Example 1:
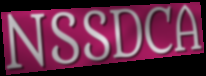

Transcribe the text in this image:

NSSDCA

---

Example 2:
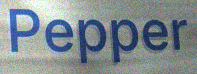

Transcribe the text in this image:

Pepper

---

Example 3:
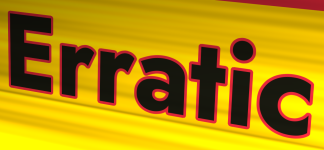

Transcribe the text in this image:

Erratic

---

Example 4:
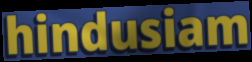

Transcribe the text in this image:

hindusiam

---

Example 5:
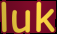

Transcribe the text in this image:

luk